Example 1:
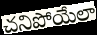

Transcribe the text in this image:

చనిపోయేలా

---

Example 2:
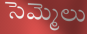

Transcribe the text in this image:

సెమ్మెలు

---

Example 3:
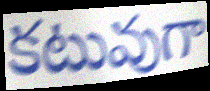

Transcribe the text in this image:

కటువుగా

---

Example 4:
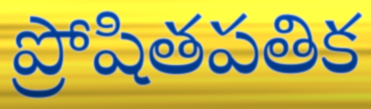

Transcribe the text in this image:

ప్రోషితపతిక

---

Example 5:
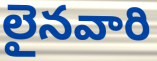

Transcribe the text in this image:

లైనవారి